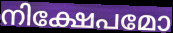
നിക്ഷേപമോ